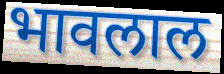
भावलाल